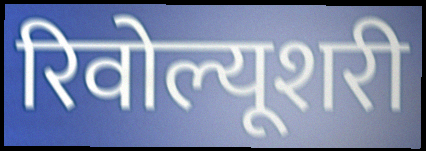
रिवोल्यूशरी